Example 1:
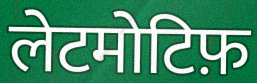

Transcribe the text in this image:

लेटमोटिफ़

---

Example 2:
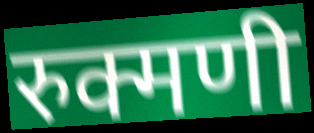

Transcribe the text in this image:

रुक्मणी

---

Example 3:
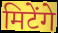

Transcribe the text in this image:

मिटेंगे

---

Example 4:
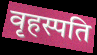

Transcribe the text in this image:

वृहस्पति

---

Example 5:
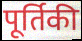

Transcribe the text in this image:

पूर्तिकी